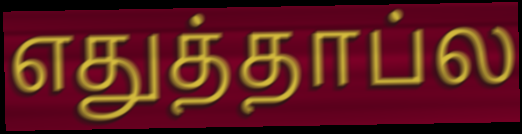
எதுத்தாப்ல